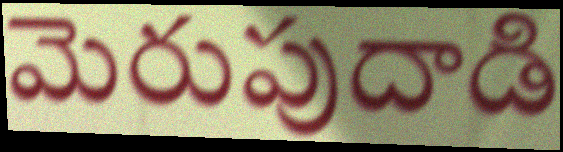
మెరుపుదాడి